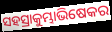
ସହସ୍ରାକୁମ୍ଭାଭିଷେକର